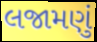
લજામણું